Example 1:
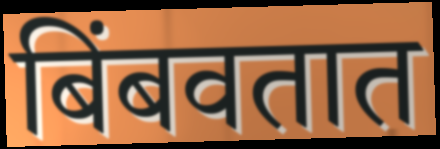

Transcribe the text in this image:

बिंबवतात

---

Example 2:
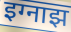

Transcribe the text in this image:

इग्नाझ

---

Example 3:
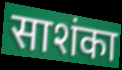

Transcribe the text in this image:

साशंका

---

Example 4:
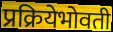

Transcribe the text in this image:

प्रक्रियेभोवती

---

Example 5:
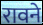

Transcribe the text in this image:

रावने